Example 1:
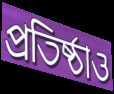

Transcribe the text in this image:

প্রতিষ্ঠাও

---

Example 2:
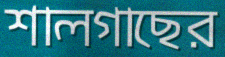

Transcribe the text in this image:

শালগাছের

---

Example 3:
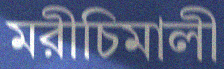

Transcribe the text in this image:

মরীচিমালী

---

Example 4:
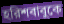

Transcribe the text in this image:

হরিশবাবুকে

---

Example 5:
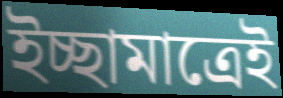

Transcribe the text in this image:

ইচ্ছামাত্রেই